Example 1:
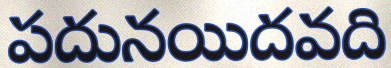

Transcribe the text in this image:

పదునయిదవది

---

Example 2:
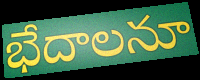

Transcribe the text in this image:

భేదాలనూ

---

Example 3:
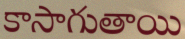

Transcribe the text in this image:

కాసాగుతాయి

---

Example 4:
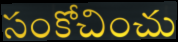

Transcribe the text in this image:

సంకోచించు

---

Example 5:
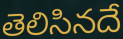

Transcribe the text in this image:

తెలిసినదే